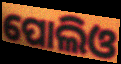
ପୋଲିଓ